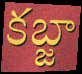
కబ్జా